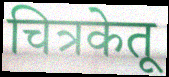
चित्रकेतू